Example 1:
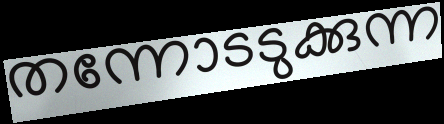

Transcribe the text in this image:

തന്നോടടുക്കുന്ന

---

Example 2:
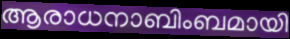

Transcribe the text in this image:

ആരാധനാബിംബമായി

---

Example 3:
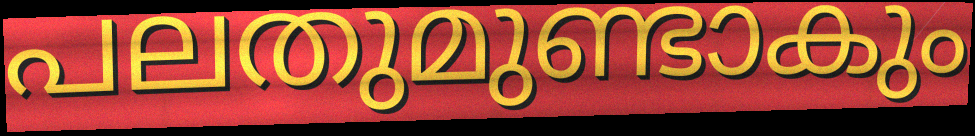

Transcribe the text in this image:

പലതുമുണ്ടാകും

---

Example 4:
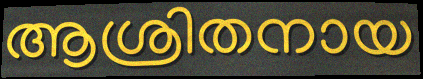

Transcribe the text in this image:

ആശ്രിതനായ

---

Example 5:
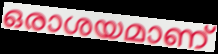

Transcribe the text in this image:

ഒരാശയമാണ്